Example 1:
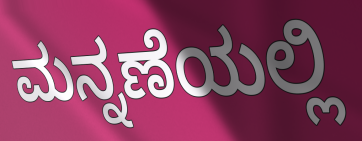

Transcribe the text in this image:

ಮನ್ನಣೆಯಲ್ಲಿ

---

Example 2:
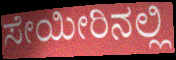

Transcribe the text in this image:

ಸೇಯೀರಿನಲ್ಲಿ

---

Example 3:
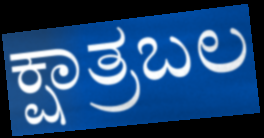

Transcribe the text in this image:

ಕ್ಷಾತ್ರಬಲ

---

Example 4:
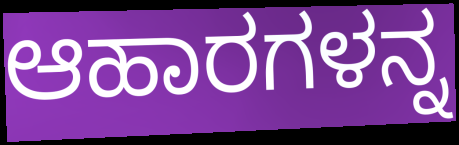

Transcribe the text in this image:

ಆಹಾರಗಳನ್ನ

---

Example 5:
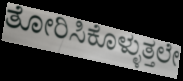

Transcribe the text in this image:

ತೋರಿಸಿಕೊಳ್ಳುತ್ತಲೇ